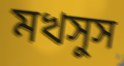
মখসুস